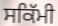
ਸਕਿੱਮੀ